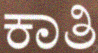
ಕಾತಿ